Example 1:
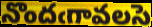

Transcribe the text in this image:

నొందఁగావలసె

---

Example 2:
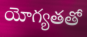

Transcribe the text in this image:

యోగ్యతతో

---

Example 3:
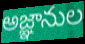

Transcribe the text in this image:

అజ్ఞానుల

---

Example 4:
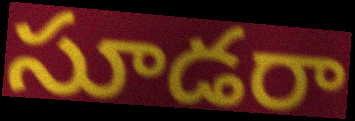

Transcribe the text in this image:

సూడరా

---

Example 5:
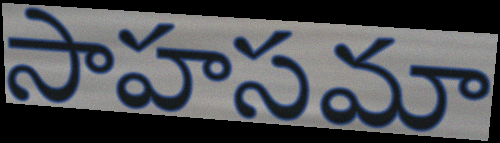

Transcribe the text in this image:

సాహసమా